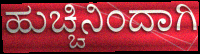
ಹುಚ್ಚಿನಿಂದಾಗಿ